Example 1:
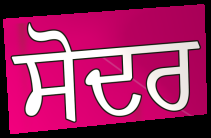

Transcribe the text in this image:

ਸੋਦਰ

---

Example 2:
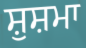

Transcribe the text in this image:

ਸ਼ੁਸ਼ਮਾ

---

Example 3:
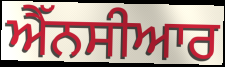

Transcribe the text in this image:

ਐੱਨਸੀਆਰ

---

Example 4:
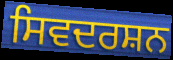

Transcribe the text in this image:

ਸਿਵਦਰਸ਼ਨ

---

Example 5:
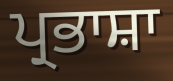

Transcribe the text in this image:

ਪ੍ਰਭਾਸ਼ਾ